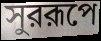
সুররূপে